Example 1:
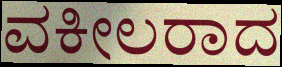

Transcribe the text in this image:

ವಕೀಲರಾದ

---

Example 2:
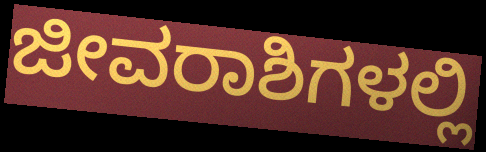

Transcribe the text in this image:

ಜೀವರಾಶಿಗಳಲ್ಲಿ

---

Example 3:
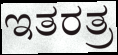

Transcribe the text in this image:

ಇತರತ್ರ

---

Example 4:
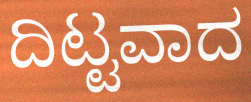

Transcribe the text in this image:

ದಿಟ್ಟವಾದ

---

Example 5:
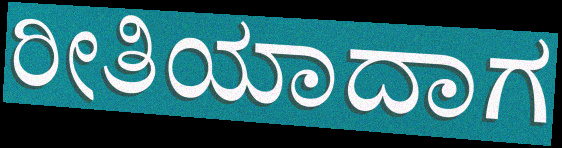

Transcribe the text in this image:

ರೀತಿಯಾದಾಗ